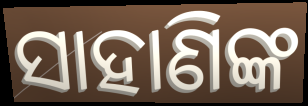
ସାହାଣିଙ୍କ